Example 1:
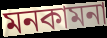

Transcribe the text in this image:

মনকামনা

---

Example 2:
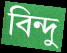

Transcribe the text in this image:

বিন্দু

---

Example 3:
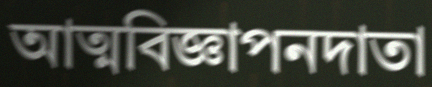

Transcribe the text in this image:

আত্মবিজ্ঞাপনদাতা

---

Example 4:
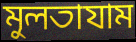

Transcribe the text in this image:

মুলতাযাম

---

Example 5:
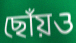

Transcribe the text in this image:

ছোঁয়ও